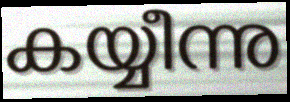
കയ്യീന്നു